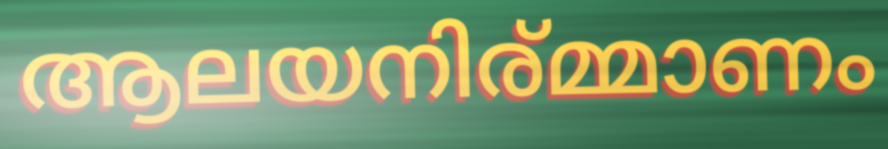
ആലയനിര്മ്മാണം